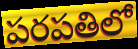
పరపతిలో